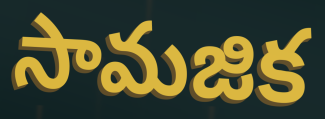
సామజిక